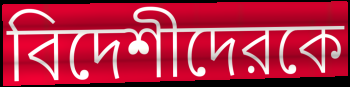
বিদেশীদেরকে